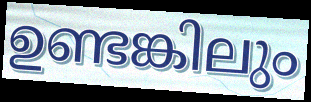
ഉണ്ടങ്കിലും